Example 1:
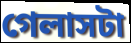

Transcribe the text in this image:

গেলাসটা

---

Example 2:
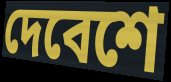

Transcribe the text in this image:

দেবেশে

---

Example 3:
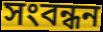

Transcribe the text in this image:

সংবন্ধন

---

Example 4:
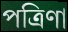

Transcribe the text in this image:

পত্রিণা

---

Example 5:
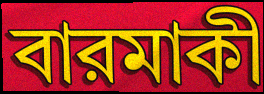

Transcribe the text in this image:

বারমাকী